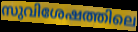
സുവിശേഷത്തിലെ